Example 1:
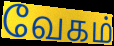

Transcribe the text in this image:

வேகம்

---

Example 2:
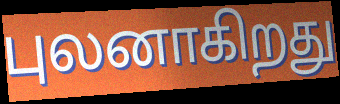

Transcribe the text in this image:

புலனாகிறது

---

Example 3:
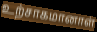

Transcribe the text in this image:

உற்சாகமானாள்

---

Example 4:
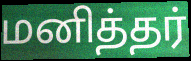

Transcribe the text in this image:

மனித்தர்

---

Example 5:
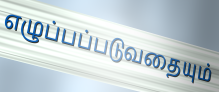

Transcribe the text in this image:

எழுப்பப்படுவதையும்